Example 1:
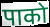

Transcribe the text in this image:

पाको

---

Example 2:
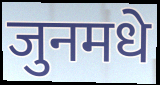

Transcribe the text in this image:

जुनमधे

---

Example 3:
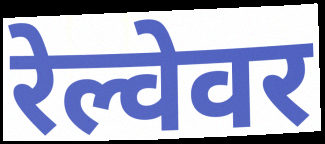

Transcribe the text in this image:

रेल्वेवर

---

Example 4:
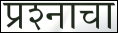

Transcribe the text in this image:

प्रश्नाचा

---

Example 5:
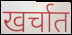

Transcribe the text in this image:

खर्चात